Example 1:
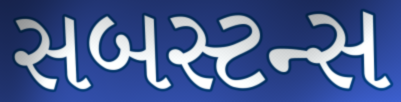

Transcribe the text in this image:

સબસ્ટન્સ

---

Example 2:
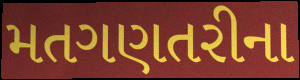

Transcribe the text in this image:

મતગણતરીના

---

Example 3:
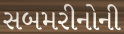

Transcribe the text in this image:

સબમરીનોની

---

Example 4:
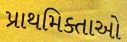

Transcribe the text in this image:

પ્રાથમિક્તાઓ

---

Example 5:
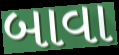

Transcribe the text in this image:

બાવા